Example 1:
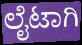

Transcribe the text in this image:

ಲೈಟಾಗಿ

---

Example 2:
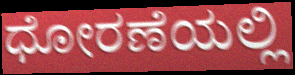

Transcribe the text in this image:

ಧೋರಣೆಯಲ್ಲಿ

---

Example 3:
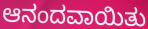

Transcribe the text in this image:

ಆನಂದವಾಯಿತು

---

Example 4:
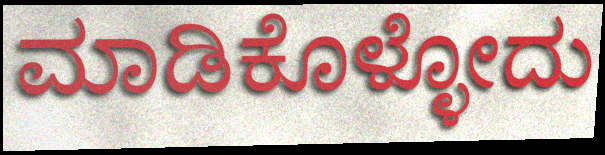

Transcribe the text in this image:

ಮಾಡಿಕೊಳ್ಳೋದು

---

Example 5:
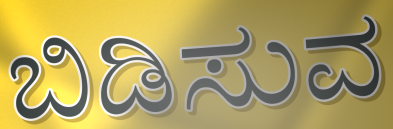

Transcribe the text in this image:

ಬಿಡಿಸುವ